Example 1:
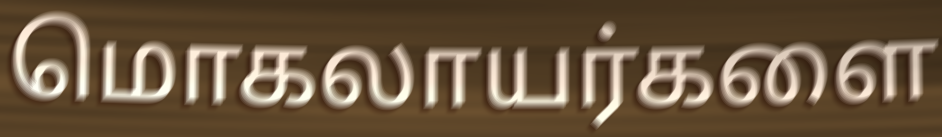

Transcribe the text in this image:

மொகலாயர்களை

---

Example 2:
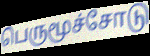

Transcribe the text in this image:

பெருமூச்சோடு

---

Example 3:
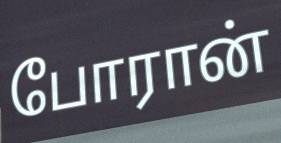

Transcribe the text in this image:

போரான்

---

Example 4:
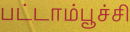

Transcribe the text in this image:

பட்டாம்பூச்சி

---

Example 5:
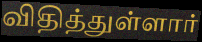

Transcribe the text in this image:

விதித்துள்ளார்